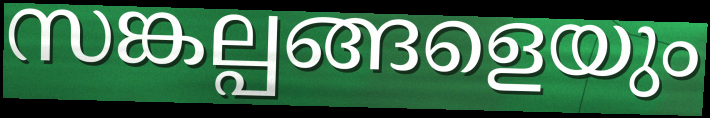
സങ്കല്പങ്ങളെയും